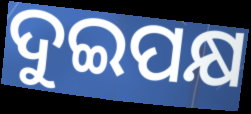
ଦୁଇପକ୍ଷ